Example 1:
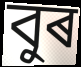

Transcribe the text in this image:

বুৰ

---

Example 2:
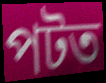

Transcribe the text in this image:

পটত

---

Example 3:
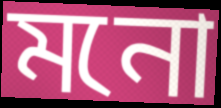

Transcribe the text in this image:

মনো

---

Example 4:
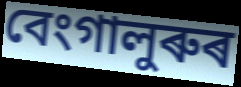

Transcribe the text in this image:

বেংগালুৰুৰ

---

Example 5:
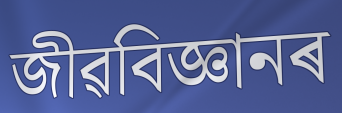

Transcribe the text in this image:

জীৱবিজ্ঞানৰ